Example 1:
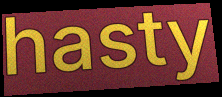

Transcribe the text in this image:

hasty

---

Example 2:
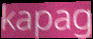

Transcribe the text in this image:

kapag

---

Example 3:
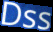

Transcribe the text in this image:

Dss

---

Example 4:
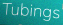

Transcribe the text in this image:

Tubings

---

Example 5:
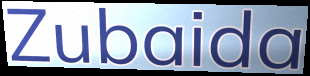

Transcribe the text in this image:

Zubaida